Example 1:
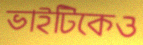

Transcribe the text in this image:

ভাইটিকেও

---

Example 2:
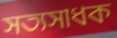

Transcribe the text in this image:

সত্যসাধক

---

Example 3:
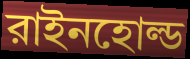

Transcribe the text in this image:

রাইনহোল্ড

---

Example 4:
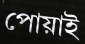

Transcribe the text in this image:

পোয়াই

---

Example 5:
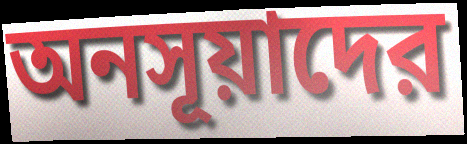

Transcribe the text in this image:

অনসূয়াদের